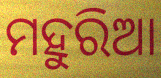
ମହୁରିଆ